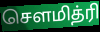
சௌமித்ரி